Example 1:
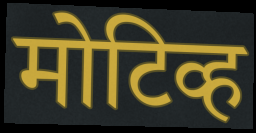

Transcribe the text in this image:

मोटिव्ह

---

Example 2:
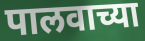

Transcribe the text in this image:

पालवाच्या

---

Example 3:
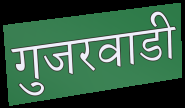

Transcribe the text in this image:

गुजरवाडी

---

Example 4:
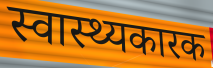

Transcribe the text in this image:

स्वास्थ्यकारक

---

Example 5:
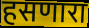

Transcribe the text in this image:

हसणारा